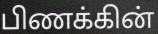
பிணக்கின்